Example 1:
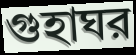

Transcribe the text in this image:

গুহাঘর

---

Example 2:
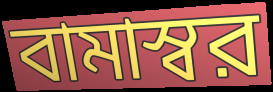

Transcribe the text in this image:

বামাস্বর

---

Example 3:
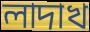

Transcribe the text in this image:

লাদাখ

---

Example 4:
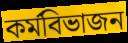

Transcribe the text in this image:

কর্মবিভাজন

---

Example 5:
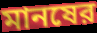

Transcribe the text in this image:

মানষের